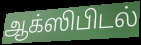
ஆக்ஸிபிடல்